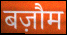
बज़ौम